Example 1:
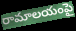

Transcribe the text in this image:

రామాలయంపై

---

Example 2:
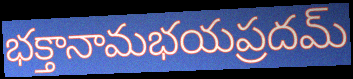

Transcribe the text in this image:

భక్తానామభయప్రదమ్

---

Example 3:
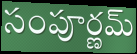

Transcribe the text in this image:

సంపూర్ణమ్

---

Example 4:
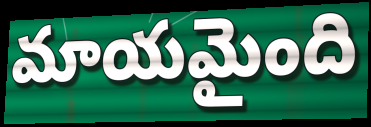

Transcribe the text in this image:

మాయమైంది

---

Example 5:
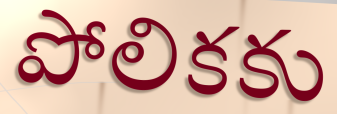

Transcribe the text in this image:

పోలికకు